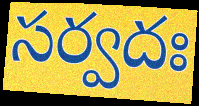
సర్వదః